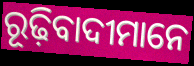
ରୂଢ଼ିବାଦୀମାନେ